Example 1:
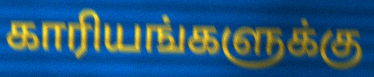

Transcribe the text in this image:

காரியங்களுக்கு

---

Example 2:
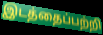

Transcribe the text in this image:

இடத்தைப்பற்றி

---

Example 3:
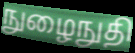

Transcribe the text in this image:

நுழைநுதி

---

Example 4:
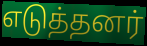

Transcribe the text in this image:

எடுத்தனர்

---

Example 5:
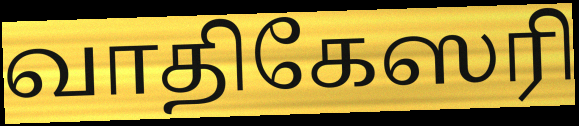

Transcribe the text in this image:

வாதிகேஸரி